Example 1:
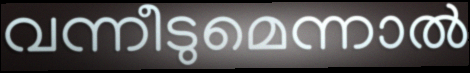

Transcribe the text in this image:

വന്നീടുമെന്നാൽ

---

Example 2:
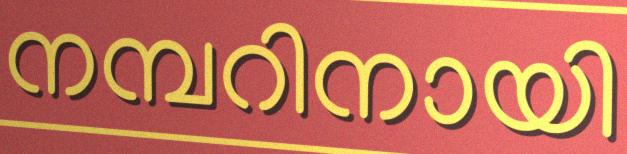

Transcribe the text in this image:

നമ്പറിനായി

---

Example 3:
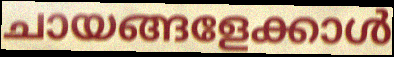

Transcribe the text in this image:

ചായങ്ങളേക്കാൾ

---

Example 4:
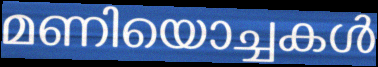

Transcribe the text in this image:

മണിയൊച്ചകൾ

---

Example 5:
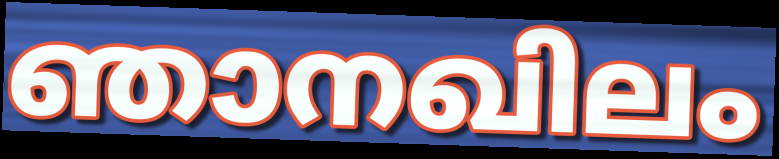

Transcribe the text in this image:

ഞാനഖിലം